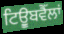
ਟਿਊੁਬਵੈੱਲਾਂ